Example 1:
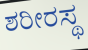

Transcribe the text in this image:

ಶರೀರಸ್ಥ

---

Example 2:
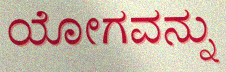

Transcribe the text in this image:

ಯೋಗವನ್ನು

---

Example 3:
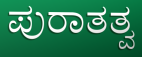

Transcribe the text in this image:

ಪುರಾತತ್ವ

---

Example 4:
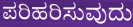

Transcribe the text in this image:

ಪರಿಹರಿಸುವುದು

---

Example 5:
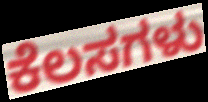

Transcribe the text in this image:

ಕೆಲಸಗಳು